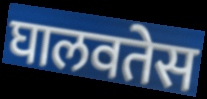
घालवतेस